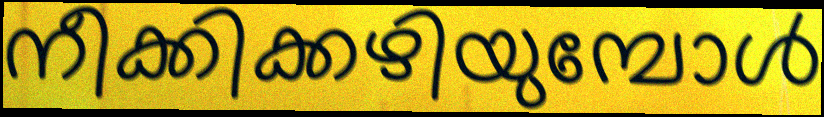
നീക്കിക്കഴിയുമ്പോൾ